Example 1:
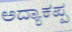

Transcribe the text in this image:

ಅದ್ಯಾಕಪ್ಪ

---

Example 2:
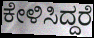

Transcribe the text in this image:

ಕೇಳಿಸಿದ್ದರೆ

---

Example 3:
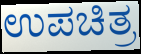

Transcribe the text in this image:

ಉಪಚಿತ್ರ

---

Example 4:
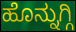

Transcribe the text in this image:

ಹೊನ್ನುಗ್ಗಿ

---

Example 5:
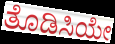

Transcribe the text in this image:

ತೊಡಿಸಿಯೇ